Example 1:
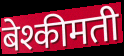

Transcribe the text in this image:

बेश्कीमती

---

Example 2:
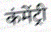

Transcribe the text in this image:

कंमेंट्री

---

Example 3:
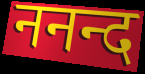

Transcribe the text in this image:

ननन्द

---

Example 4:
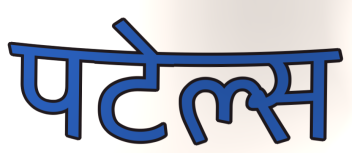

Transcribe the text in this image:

पटेल्स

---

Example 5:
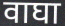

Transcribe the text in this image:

वाघा